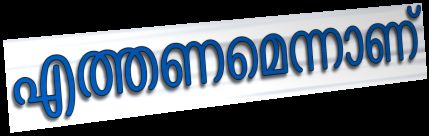
എത്തണമെന്നാണ്